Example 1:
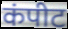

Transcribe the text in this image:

कंपीट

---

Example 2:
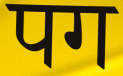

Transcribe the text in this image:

पग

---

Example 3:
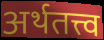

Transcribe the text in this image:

अर्थतत्त्व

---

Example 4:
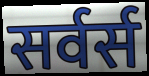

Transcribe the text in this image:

सर्वर्स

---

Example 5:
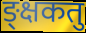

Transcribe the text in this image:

ङ्क्षकतु